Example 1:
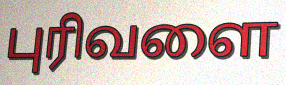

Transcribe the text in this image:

புரிவளை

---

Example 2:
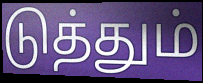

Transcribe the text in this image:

டுத்தும்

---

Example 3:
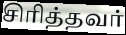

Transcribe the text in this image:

சிரித்தவர்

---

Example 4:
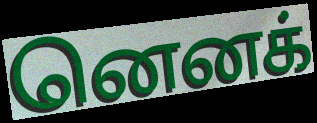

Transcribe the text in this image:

னெனக்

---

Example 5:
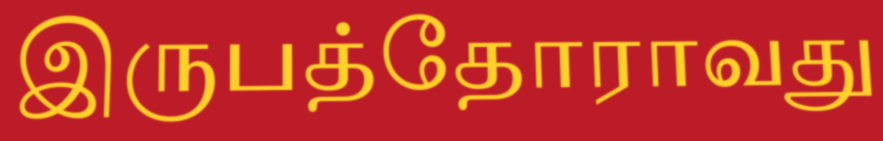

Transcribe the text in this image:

இருபத்தோராவது